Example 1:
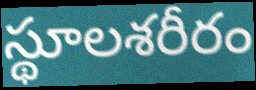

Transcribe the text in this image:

స్థూలశరీరం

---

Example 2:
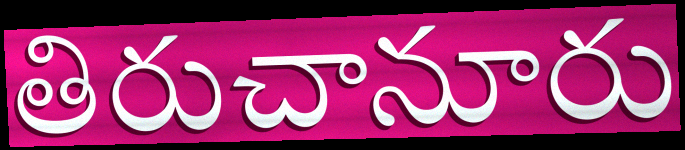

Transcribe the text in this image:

తిరుచానూరు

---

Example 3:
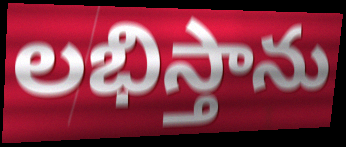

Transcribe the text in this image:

లభిస్తాను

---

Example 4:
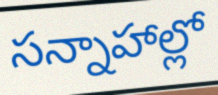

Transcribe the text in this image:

సన్నాహాల్లో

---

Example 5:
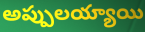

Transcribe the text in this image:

అప్పులయ్యాయి